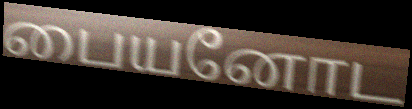
பையனோட